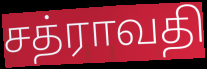
சத்ராவதி